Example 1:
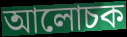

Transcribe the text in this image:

আলোচক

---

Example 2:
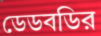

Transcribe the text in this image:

ডেডবডির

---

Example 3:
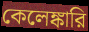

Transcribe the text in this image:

কেলেঙ্কারি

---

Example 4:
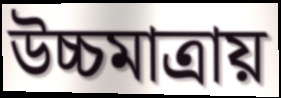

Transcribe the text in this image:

উচ্চমাত্রায়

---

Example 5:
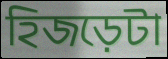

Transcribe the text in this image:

হিজড়েটা